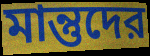
মান্তুদের